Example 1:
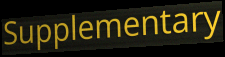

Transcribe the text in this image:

Supplementary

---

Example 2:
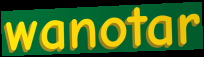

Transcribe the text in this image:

wanotar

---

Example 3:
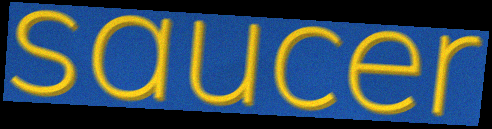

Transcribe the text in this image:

saucer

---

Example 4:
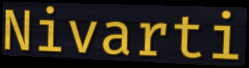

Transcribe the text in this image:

Nivarti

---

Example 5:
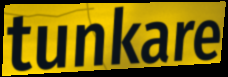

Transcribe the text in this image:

tunkare